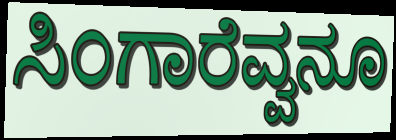
ಸಿಂಗಾರೆವ್ವನೂ